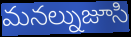
మనల్నుజూసి